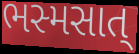
ભસ્મસાત્